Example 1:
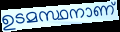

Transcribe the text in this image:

ഉടമസ്ഥനാണ്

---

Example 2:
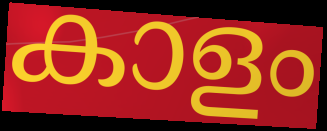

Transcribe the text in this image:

കാളം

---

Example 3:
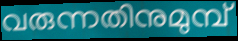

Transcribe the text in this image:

വരുന്നതിനുമുമ്പ്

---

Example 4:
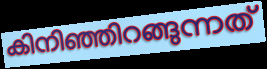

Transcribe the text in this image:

കിനിഞ്ഞിറങ്ങുന്നത്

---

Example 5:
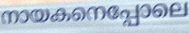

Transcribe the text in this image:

നായകനെപ്പോലെ